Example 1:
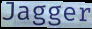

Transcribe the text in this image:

Jagger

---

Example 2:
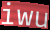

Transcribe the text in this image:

iwu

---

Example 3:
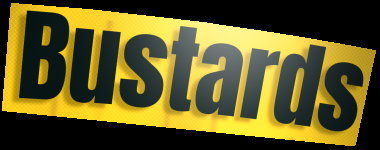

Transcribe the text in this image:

Bustards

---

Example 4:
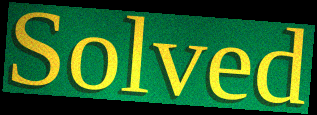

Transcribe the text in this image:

Solved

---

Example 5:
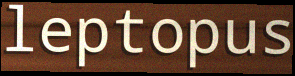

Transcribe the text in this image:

leptopus